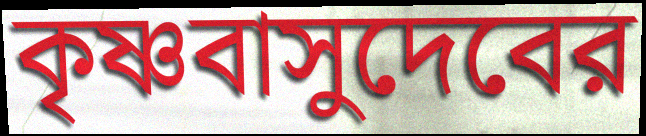
কৃষ্ণবাসুদেবের